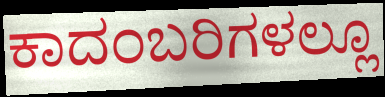
ಕಾದಂಬರಿಗಳಲ್ಲೂ